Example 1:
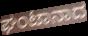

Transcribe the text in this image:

ಘಂಟಾನಾದ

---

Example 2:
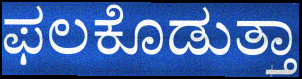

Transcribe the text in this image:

ಫಲಕೊಡುತ್ತಾ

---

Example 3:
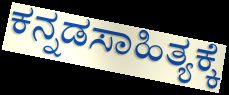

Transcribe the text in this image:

ಕನ್ನಡಸಾಹಿತ್ಯಕ್ಕೆ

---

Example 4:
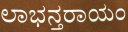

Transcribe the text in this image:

ಲಾಭನ್ತರಾಯಂ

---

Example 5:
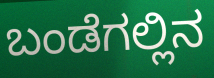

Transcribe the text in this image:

ಬಂಡೆಗಲ್ಲಿನ